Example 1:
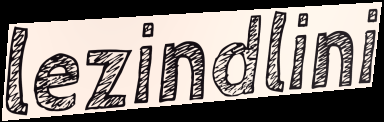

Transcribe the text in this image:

lezindlini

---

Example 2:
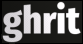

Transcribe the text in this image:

ghrit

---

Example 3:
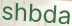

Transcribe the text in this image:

shbda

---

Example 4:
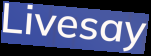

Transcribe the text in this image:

Livesay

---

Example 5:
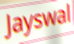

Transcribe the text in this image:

Jayswal